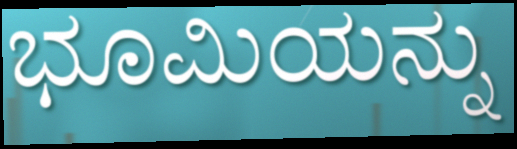
ಭೂಮಿಯನ್ನು